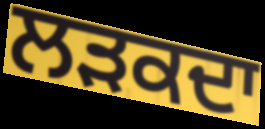
ਲੜਕਦਾ